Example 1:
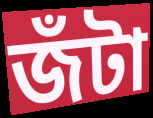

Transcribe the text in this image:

জঁটা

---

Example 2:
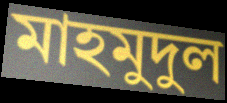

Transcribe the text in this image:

মাহমুদুল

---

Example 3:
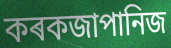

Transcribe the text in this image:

কৰকজাপানিজ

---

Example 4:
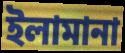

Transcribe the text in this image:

ইলামানা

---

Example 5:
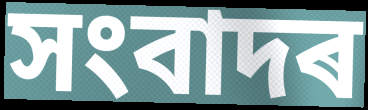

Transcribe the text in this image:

সংবাদৰ